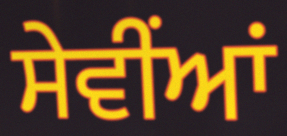
ਸੇਵੀਂਆਂ